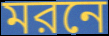
মরনে